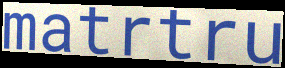
matrtru